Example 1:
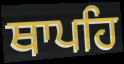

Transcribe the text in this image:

ਥਾਪਹਿ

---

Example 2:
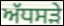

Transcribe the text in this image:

ਅੱਧਸੜੇ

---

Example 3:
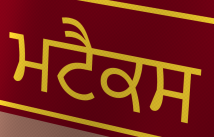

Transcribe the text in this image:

ਮਟੈਕਸ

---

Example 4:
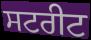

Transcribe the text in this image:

ਸਟਰੀਟ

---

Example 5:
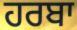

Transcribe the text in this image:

ਹਰਬਾ